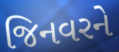
જિનવરને